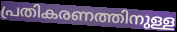
പ്രതികരണത്തിനുള്ള